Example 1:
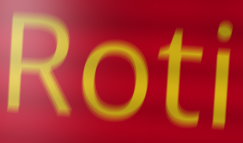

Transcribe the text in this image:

Roti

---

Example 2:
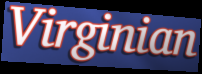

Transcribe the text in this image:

Virginian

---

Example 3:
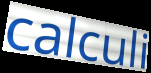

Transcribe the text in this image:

calculi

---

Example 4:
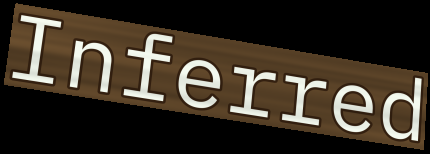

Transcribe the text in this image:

Inferred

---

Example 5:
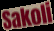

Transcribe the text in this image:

Sakoli